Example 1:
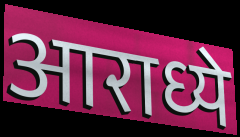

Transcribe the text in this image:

आराध्ये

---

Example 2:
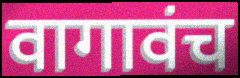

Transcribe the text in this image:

वागावंच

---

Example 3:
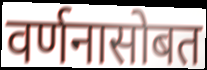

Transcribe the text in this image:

वर्णनासोबत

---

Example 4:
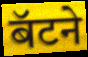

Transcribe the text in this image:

बॅटने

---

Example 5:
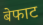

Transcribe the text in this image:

बेफाट